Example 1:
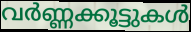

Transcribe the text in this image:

വർണ്ണക്കൂട്ടുകൾ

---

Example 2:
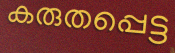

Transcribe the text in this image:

കരുതപ്പെട്ട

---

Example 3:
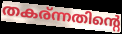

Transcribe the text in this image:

തകര്ന്നതിന്റെ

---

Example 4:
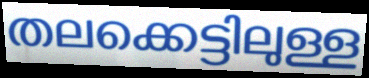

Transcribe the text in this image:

തലക്കെട്ടിലുള്ള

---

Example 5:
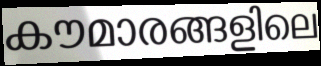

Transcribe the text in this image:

കൗമാരങ്ങളിലെ